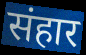
संहार